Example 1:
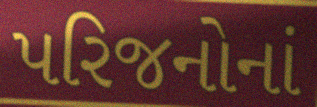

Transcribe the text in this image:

પરિજનોનાં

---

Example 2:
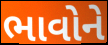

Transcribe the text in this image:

ભાવોને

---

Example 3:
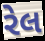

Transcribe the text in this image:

રેલ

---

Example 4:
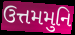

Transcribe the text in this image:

ઉત્તમમુનિ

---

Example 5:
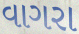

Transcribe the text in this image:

વાગરા